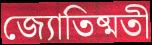
জ্যোতিষ্মতী